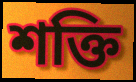
শক্তি